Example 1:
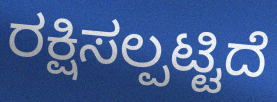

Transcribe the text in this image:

ರಕ್ಷಿಸಲ್ಪಟ್ಟಿದೆ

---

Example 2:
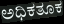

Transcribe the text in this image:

ಅಧಿಕತೂಕ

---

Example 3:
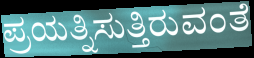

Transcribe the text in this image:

ಪ್ರಯತ್ನಿಸುತ್ತಿರುವಂತೆ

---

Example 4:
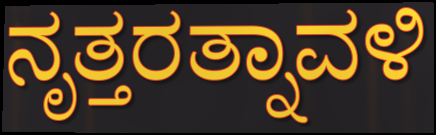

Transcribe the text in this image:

ನೃತ್ತರತ್ನಾವಳಿ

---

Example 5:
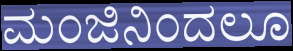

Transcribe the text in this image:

ಮಂಜಿನಿಂದಲೂ